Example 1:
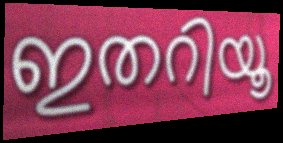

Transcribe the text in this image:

ഇതറിയൂ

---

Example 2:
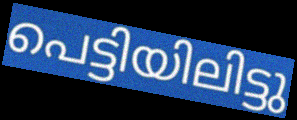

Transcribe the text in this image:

പെട്ടിയിലിട്ടു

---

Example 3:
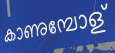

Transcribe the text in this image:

കാണുമ്പോള്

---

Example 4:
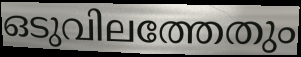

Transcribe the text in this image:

ഒടുവിലത്തേതും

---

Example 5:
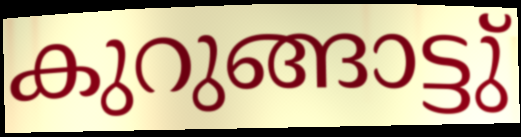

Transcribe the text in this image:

കുറുങ്ങാട്ടു്